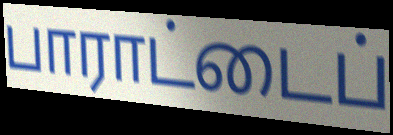
பாராட்டைப்